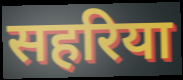
सहरिया